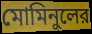
মোমিনুলের